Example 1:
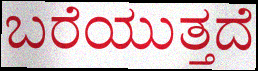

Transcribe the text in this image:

ಬರೆಯುತ್ತದೆ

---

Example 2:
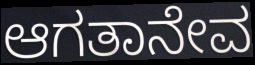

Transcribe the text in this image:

ಆಗತಾನೇವ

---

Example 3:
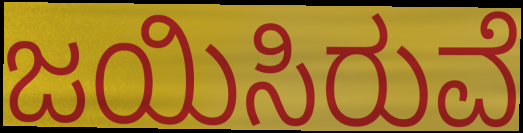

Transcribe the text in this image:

ಜಯಿಸಿರುವೆ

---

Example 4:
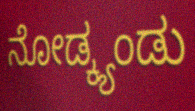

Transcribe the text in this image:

ನೋಡ್ಕ್ಯಂಡು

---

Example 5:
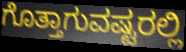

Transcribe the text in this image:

ಗೊತ್ತಾಗುವಷ್ಟರಲ್ಲಿ